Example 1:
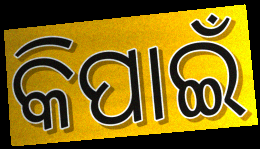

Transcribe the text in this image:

କିପାଇଁ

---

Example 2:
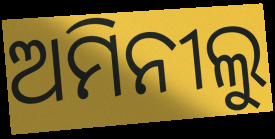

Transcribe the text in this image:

ଅମିନୀଲୁ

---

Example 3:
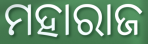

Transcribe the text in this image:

ମହାରାଜ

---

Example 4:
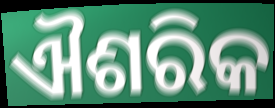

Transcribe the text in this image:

ଐଶରିକ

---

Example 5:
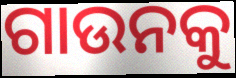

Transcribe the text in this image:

ଗାଉନକୁ